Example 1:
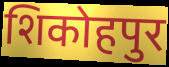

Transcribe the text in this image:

शिकोहपुर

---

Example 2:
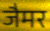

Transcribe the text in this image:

जैमर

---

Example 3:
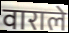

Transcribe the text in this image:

वाराले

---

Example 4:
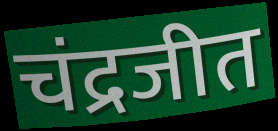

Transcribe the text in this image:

चंद्रजीत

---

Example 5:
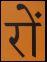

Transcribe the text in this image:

रों